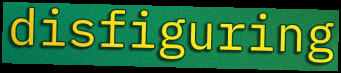
disfiguring